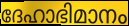
ദേഹാഭിമാനം